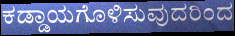
ಕಡ್ಡಾಯಗೊಳಿಸುವುದರಿಂದ